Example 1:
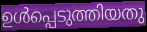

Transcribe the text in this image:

ഉൾപ്പെടുത്തിയതു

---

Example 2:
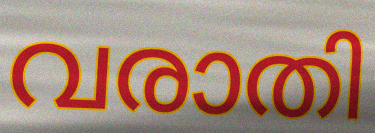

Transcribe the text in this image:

വരാതി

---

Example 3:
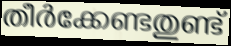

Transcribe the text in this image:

തീർക്കേണ്ടതുണ്ട്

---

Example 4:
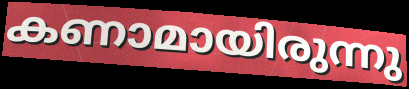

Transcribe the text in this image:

കണാമായിരുന്നു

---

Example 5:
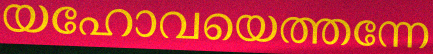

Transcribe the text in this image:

യഹോവയെത്തന്നേ